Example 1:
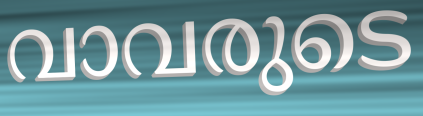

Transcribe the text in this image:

വാവരുടെ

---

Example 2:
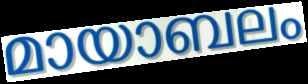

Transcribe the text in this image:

മായാബലം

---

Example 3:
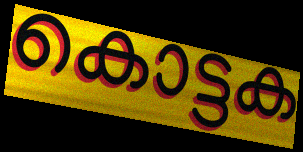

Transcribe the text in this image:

കൊട്ടക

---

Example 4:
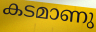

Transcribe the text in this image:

കടമാണു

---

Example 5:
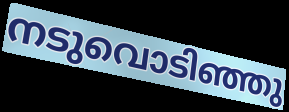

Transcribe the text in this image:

നടുവൊടിഞ്ഞു